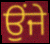
ਉਂਜੇ